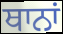
ਥਾਨਾਂ